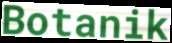
Botanik